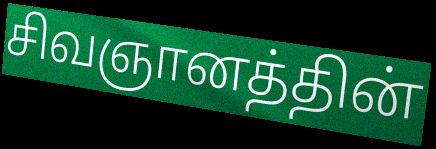
சிவஞானத்தின்